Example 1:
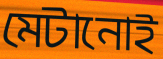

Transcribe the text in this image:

মেটানোই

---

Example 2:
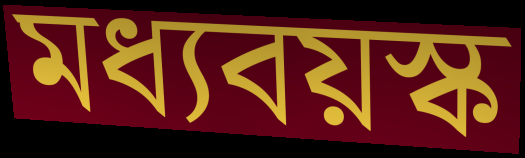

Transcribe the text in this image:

মধ্যবয়স্ক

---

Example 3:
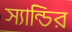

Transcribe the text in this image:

স্যান্ডির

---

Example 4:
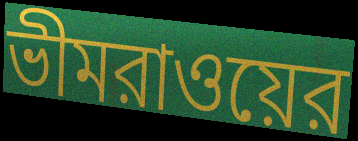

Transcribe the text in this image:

ভীমরাওয়ের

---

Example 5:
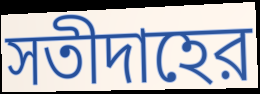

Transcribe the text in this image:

সতীদাহের